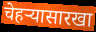
चेहऱ्यासारखा